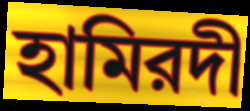
হামিরদী